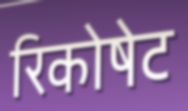
रिकोषेट